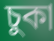
চুকা